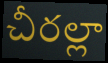
చీరల్లా